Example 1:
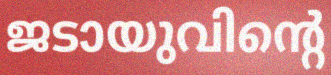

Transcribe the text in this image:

ജടായുവിന്റെ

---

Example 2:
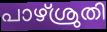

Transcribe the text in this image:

പാഴ്ശ്രുതി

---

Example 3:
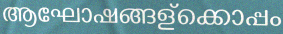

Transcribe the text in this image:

ആഘോഷങ്ങള്ക്കൊപ്പം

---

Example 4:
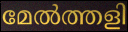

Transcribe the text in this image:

മേൽത്തളി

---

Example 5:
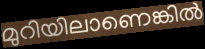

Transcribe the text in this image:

മുറിയിലാണെങ്കിൽ